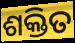
ଶକ୍ତିତ